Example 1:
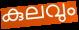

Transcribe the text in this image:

കുലവും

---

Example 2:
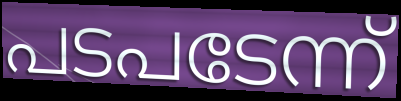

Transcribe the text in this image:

പടപടേന്ന്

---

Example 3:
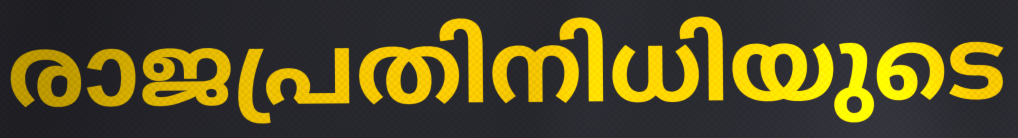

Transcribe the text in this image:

രാജപ്രതിനിധിയുടെ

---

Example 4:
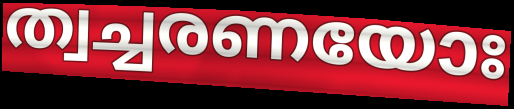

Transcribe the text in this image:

ത്വച്ചരണയോഃ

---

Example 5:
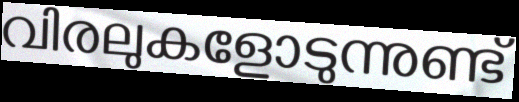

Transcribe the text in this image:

വിരലുകളോടുന്നുണ്ട്